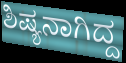
ಶಿಷ್ಯನಾಗಿದ್ದ